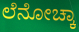
ಲೆನೋಚ್ಕಾ